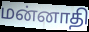
மன்னாதி